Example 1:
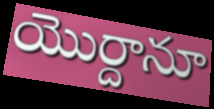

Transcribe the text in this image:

యొర్దానూ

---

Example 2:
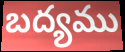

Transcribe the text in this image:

బద్యము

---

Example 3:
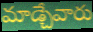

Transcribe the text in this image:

మాడ్చేవారు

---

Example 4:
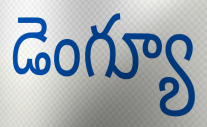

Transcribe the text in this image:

డెంగ్యూ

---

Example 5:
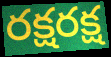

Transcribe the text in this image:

రక్షరక్ష